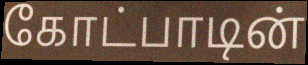
கோட்பாடின்